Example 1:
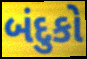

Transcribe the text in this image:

બંદુકો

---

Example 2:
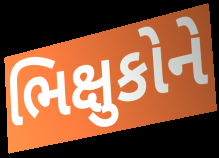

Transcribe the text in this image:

ભિક્ષુકોને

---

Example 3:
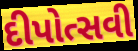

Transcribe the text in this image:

દીપોત્સવી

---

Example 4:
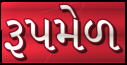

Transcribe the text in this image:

રૂપમેળ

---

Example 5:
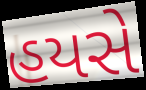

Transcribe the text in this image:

હયસે